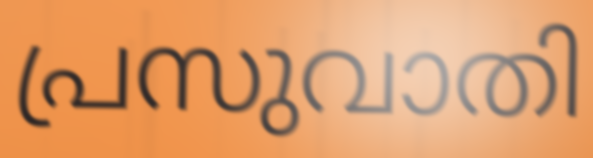
പ്രസുവാതി